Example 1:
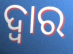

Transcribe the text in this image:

ଦ୍ୱାର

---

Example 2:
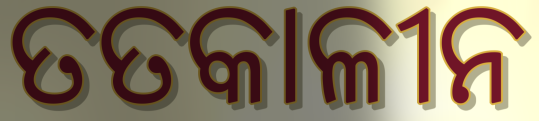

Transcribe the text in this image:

ତତକାଳୀନ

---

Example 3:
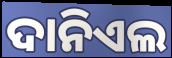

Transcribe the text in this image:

ଦାନିଏଲ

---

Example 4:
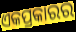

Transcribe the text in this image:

ଏକପ୍ରକାରର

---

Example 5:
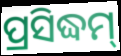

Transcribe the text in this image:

ପ୍ରସିଦ୍ଧମ୍